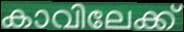
കാവിലേക്ക്